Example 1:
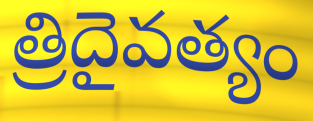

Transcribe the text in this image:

త్రిదైవత్యం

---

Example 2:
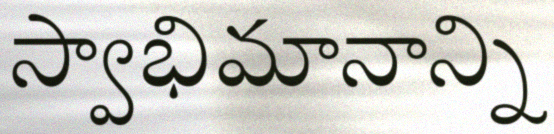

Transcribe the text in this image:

స్వాభిమానాన్ని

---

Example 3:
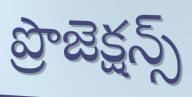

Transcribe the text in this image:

ప్రొజెక్షన్స్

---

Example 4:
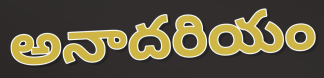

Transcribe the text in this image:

అనాదరియం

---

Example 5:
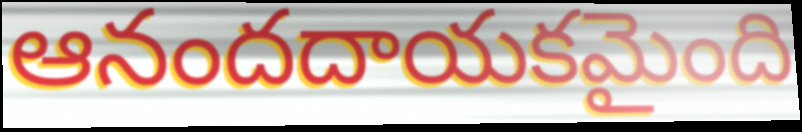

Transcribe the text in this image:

ఆనందదాయకమైంది